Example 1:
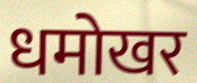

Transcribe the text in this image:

धमोखर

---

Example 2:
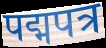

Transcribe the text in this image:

पद्मपत्र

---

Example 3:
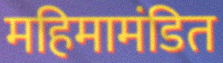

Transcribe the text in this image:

महिमामंडित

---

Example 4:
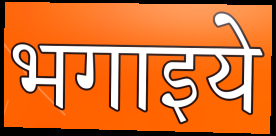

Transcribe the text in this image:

भगाइये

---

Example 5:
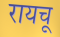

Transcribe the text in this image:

रायचू